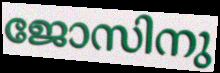
ജോസിനു